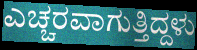
ಎಚ್ಚರವಾಗುತ್ತಿದ್ದಳು